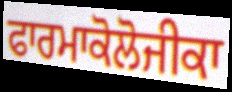
ਫਾਰਮਾਕੋਲੋਜੀਕਾ